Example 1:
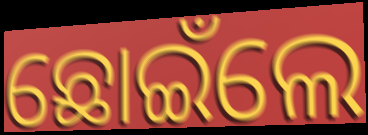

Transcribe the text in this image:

ଛୋଇଁଲେ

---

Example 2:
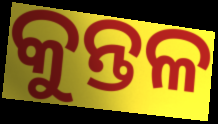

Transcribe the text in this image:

କୁନ୍ତଳ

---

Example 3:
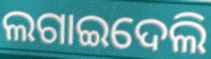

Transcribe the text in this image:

ଲଗାଇଦେଲି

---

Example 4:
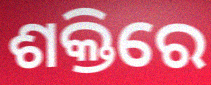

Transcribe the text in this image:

ଶକ୍ତିରେ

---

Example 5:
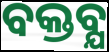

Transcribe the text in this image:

ବକ୍ତବ୍ଯ